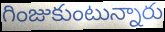
గింజుకుంటున్నారు